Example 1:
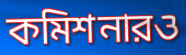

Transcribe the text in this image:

কমিশনারও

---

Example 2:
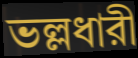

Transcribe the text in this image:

ভল্লধারী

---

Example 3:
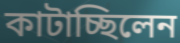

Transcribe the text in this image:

কাটাচ্ছিলেন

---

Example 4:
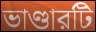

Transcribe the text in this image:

ভাণ্ডারটি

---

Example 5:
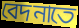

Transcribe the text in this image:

বেদনাতে